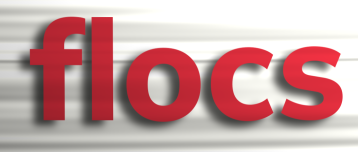
flocs